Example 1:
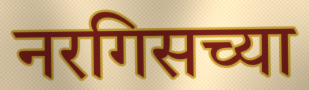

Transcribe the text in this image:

नरगिसच्या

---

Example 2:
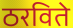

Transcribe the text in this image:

ठरविते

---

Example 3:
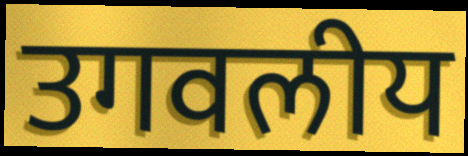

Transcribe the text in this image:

उगवलीय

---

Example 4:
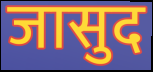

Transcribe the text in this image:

जासुद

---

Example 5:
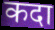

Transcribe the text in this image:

कदा